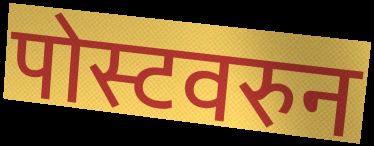
पोस्टवरुन